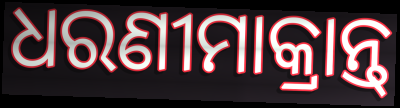
ଧରଣୀମାକ୍ରାନ୍ତ୍